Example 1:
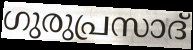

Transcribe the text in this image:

ഗുരുപ്രസാദ്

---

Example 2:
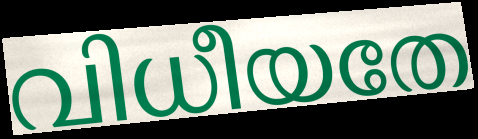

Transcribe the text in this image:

വിധീയതേ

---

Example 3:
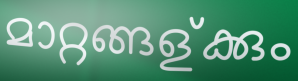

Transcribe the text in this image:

മാറ്റങ്ങള്ക്കും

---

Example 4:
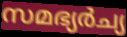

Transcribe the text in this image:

സമഭ്യർച്യ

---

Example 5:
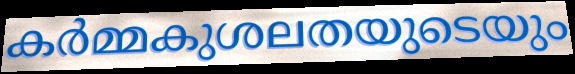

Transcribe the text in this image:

കർമ്മകുശലതയുടെയും